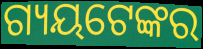
ଗ୍ୟୟଟେଙ୍କର